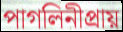
পাগলিনীপ্রায়